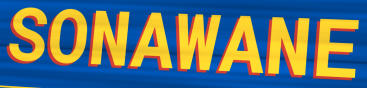
SONAWANE